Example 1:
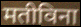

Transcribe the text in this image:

मतीविना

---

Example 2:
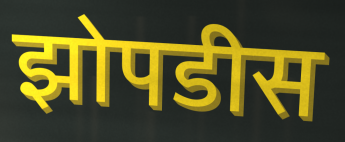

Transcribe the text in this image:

झोपडीस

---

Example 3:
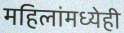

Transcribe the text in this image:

महिलांमध्येही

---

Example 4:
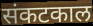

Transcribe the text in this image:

संकटकाल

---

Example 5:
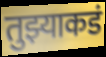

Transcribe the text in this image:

तुझ्याकडं